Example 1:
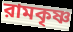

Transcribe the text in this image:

রামকৃষ্ণ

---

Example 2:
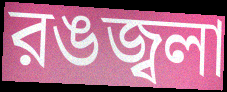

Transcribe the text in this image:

রঙজ্বলা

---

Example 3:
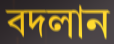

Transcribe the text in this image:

বদলান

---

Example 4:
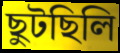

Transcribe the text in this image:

ছুটছিলি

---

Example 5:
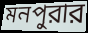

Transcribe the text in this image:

মনপুরার